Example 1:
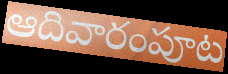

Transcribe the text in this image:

ఆదివారంపూట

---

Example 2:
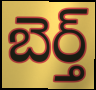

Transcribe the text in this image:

బెర్త్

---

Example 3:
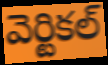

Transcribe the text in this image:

వెర్టికల్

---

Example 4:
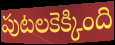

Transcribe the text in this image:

పుటలకెక్కింది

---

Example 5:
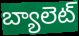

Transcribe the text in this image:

బ్యాలెట్